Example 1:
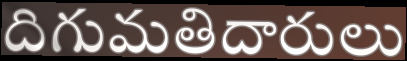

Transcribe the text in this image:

దిగుమతిదారులు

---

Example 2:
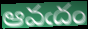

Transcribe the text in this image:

ఆవఁదం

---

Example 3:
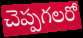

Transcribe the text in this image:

చెప్పగలరో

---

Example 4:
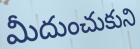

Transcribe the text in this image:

మీదుంచుకుని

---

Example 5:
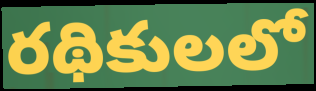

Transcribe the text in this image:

రథికులలో